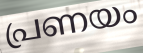
പ്രണയം